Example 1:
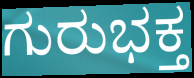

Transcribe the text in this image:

ಗುರುಭಕ್ತ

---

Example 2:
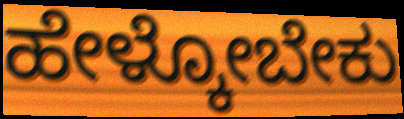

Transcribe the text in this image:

ಹೇಳ್ಕೋಬೇಕು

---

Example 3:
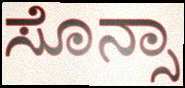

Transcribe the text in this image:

ಸೊನ್ಸಾ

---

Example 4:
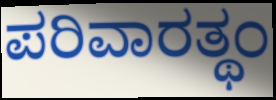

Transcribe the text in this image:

ಪರಿವಾರತ್ಥಂ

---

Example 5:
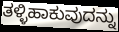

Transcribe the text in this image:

ತಳ್ಳಿಹಾಕುವುದನ್ನು